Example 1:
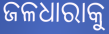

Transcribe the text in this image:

ଜଳଧାରାକୁ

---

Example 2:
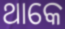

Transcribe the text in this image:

ଥାକେ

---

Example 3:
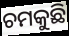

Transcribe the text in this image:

ଚମକୁଛି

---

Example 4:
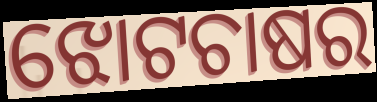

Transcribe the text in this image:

ଝୋଟଚାଷର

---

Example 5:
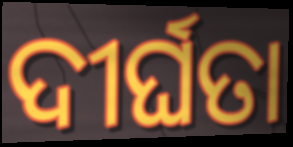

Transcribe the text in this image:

ଦୀର୍ଘତା